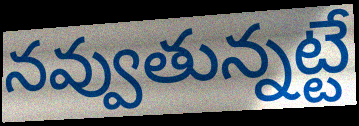
నవ్వుతున్నట్టే